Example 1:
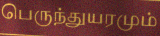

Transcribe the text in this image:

பெருந்துயரமும்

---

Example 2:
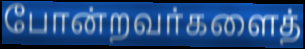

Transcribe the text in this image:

போன்றவர்களைத்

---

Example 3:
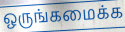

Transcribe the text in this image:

ஒருங்கமைக்க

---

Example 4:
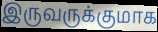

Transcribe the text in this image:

இருவருக்குமாக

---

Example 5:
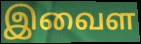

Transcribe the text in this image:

இவைள